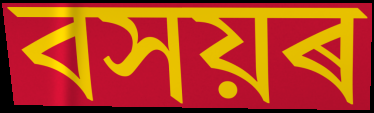
বসয়ৰ